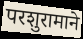
परशुरामाने